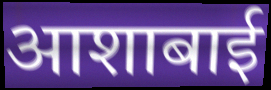
आशाबाई